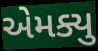
એમક્યુ